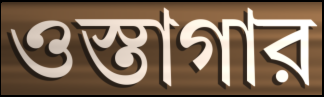
ওস্তাগার